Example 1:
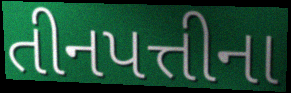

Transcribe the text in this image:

તીનપત્તીના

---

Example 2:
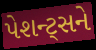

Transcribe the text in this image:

પેશન્ટ્સને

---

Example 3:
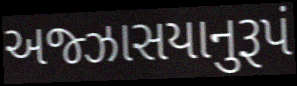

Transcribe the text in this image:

અજ્ઝાસયાનુરૂપં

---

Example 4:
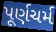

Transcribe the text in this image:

પૂર્ણચર્મ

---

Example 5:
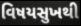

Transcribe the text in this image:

વિષયસુખથી